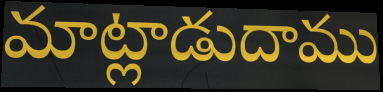
మాట్లాడుదాము